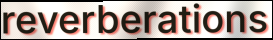
reverberations